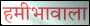
हमीभावाला